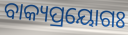
ବାକ୍ୟପ୍ରୟୋଗଃ